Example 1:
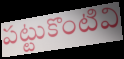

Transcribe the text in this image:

పట్టుకొంటివి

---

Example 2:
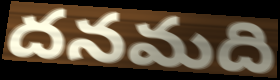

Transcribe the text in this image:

దనమది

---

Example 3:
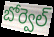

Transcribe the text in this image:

బోర్వెల్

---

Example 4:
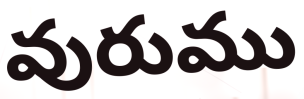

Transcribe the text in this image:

వురుము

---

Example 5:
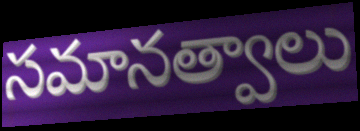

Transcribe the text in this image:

సమానత్వాలు